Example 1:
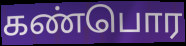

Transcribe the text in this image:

கண்பொர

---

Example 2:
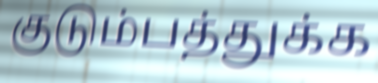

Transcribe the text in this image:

குடும்பத்துக்க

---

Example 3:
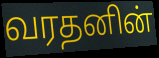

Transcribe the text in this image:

வரதனின்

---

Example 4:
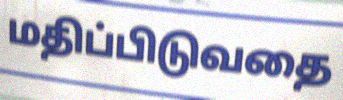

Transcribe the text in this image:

மதிப்பிடுவதை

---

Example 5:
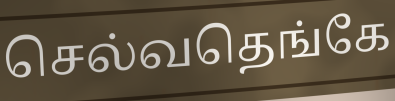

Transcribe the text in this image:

செல்வதெங்கே